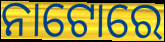
ନାଟୋରେ